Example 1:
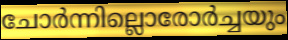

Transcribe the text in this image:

ചോർന്നില്ലൊരോർച്ചയും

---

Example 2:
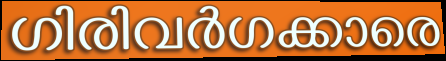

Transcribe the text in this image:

ഗിരിവർഗക്കാരെ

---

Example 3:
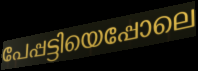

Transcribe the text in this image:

പേപ്പട്ടിയെപ്പോലെ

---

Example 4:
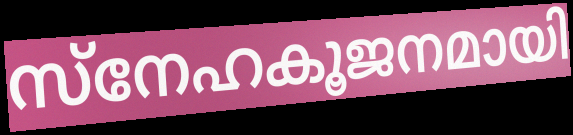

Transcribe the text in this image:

സ്നേഹകൂജനമായി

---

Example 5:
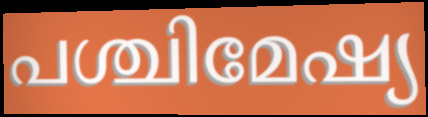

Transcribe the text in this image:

പശ്ചിമേഷ്യ